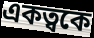
একত্বকে